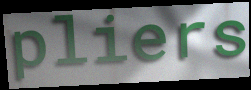
pliers